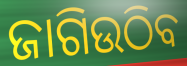
ଜାଗିଉଠିବ